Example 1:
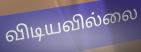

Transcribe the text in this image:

விடியவில்லை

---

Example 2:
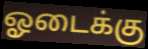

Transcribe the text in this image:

ஓடைக்கு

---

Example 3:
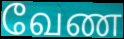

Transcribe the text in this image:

வேண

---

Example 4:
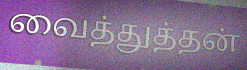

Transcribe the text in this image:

வைத்துத்தன்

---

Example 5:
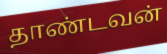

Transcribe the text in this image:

தாண்டவன்